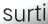
surti